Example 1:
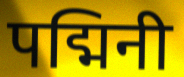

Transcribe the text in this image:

पद्मिनी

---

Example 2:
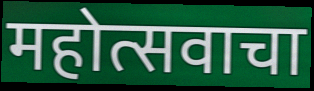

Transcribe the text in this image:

महोत्सवाचा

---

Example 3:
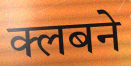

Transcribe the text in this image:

क्‍लबने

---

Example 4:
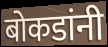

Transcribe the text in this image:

बोकडांनी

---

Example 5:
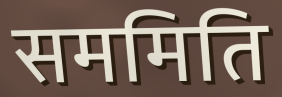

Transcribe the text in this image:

सममिति